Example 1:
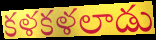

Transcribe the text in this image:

కళకళలాడు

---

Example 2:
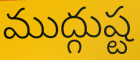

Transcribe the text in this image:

ముద్గుష్ట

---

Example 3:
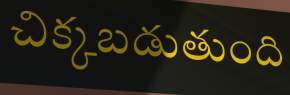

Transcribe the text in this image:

చిక్కబడుతుంది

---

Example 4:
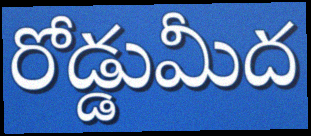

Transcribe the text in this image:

రోడ్డుమీద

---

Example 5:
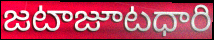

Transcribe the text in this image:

జటాజూటధారి